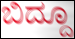
ಬಿದ್ದೂ